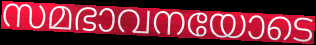
സമഭാവനയോടെ